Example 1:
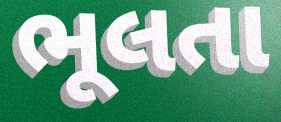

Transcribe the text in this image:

ભૂલતા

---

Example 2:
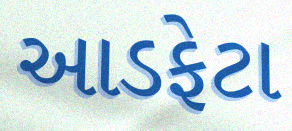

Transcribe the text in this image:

આડફેટા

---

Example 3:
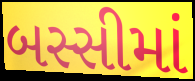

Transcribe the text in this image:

બસ્સીમાં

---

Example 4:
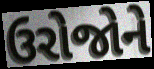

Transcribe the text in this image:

ઉરોજોને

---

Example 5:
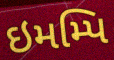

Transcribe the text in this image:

ઇમમ્પિ